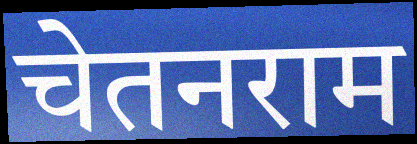
चेतनराम